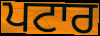
ਪਟਾਰ